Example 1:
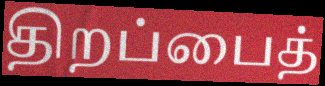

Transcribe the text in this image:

திறப்பைத்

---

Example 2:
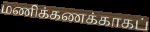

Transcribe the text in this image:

மணிக்கணக்காகப்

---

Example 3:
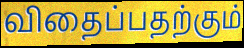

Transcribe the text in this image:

விதைப்பதற்கும்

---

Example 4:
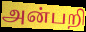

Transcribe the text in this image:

அன்பறி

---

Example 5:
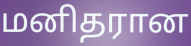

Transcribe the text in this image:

மனிதரான